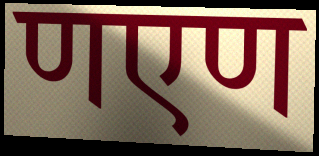
णएण